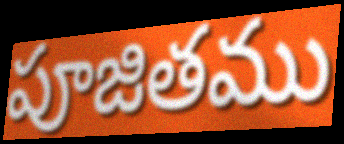
పూజితము